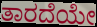
ತಾರದೆಯೇ